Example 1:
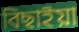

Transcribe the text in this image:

বিছাইয়া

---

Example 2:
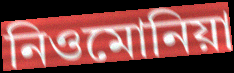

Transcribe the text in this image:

নিওমোনিয়া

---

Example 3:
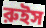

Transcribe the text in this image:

রুইস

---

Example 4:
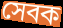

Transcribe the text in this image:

সেবক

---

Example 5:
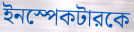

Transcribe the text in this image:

ইনস্পেকটারকে